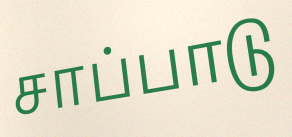
சாப்பாடு